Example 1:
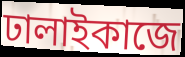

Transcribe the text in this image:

ঢালাইকাজে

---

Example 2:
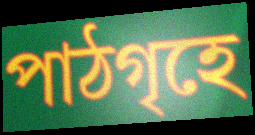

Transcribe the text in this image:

পাঠগৃহে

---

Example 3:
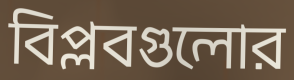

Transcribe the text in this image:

বিপ্লবগুলোর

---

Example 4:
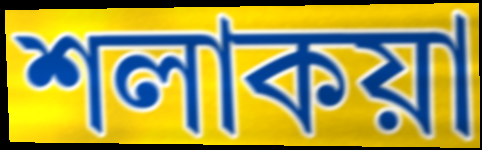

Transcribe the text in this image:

শলাকয়া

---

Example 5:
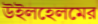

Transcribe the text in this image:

উইলহেলমের